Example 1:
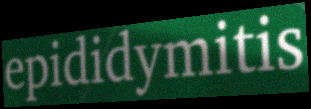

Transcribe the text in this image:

epididymitis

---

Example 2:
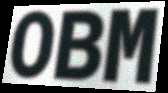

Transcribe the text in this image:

OBM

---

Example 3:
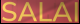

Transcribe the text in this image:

SALAI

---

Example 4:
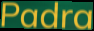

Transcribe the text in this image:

Padra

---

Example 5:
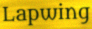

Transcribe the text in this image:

Lapwing